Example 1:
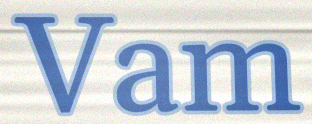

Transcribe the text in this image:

Vam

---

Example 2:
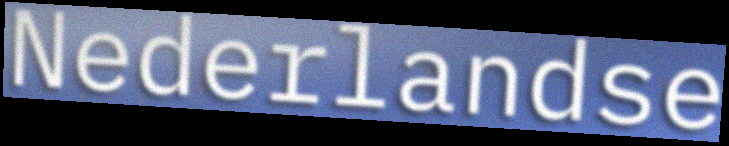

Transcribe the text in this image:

Nederlandse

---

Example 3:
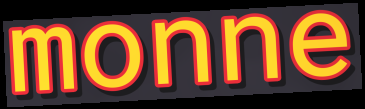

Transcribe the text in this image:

monne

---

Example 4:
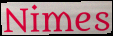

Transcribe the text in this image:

Nimes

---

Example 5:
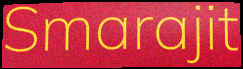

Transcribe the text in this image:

Smarajit